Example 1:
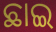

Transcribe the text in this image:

ଛାଇ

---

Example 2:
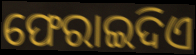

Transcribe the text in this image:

ଫେରାଇଦିଏ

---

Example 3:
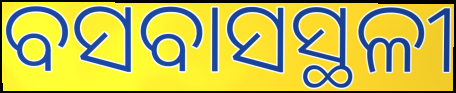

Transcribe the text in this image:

ବସବାସସ୍ଥଳୀ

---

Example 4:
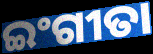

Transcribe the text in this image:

ଇଂଗୀତା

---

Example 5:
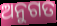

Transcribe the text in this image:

ଅନୁଗତ